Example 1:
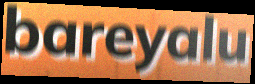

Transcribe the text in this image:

bareyalu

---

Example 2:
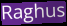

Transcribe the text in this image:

Raghus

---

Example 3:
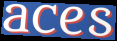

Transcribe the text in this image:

aces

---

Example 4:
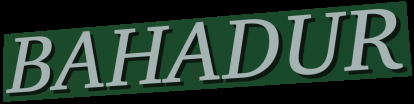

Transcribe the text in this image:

BAHADUR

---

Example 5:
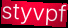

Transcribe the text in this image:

styvpf